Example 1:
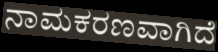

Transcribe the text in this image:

ನಾಮಕರಣವಾಗಿದೆ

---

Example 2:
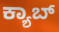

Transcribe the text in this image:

ಕ್ಯಾಬ್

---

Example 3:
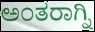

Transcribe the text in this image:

ಅಂತರಾಗ್ನಿ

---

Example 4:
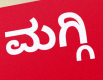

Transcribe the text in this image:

ಮಗ್ಗಿ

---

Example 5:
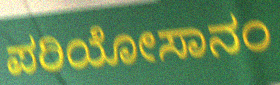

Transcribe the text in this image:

ಪರಿಯೋಸಾನಂ